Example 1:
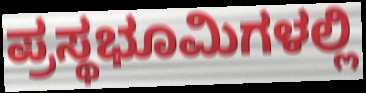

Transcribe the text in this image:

ಪ್ರಸ್ಥಭೂಮಿಗಳಲ್ಲಿ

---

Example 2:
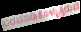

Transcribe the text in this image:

ಬರಮಾಡಿಕೊಳ್ಳುತ್ತಿರುವ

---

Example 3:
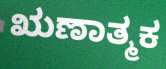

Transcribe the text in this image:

ಋಣಾತ್ಮಕ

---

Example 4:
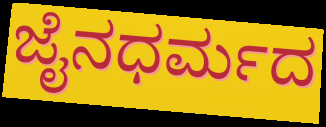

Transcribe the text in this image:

ಜೈನಧರ್ಮದ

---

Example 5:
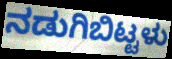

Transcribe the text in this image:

ನಡುಗಿಬಿಟ್ಟಳು